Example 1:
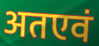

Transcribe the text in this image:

अतएवं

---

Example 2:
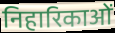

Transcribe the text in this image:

निहारिकाओं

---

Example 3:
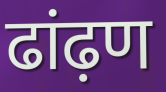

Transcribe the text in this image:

ढांढ़ण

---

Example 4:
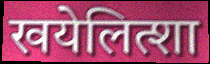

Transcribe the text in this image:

खयेलित्शा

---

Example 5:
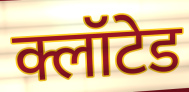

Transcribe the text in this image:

क्लॉटेड